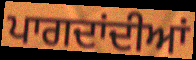
ਪਾਗਦਾਂਦੀਆਂ